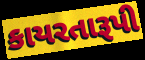
કાયરતારૂપી